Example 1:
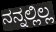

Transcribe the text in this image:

ನನ್ನಲ್ಲಿಲ್ಲ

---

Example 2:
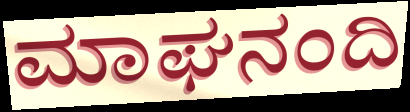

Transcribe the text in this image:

ಮಾಘನಂದಿ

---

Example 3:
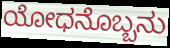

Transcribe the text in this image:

ಯೋಧನೊಬ್ಬನು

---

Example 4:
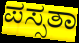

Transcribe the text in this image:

ಪಸ್ಸತಾ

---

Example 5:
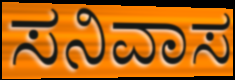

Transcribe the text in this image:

ಸನಿವಾಸ